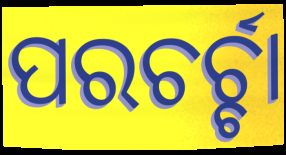
ପରଚର୍ଚ୍ଚା